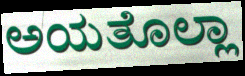
ಅಯತೊಲ್ಲಾ